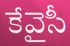
కేవైసీ